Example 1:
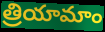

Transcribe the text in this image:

త్రియామాం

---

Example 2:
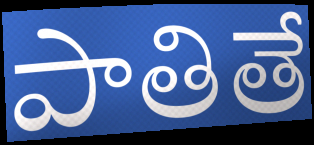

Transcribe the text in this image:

పాతితే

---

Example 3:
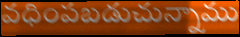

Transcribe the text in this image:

వధింపబడుచున్నాము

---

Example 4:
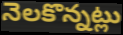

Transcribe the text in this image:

నెలకొన్నట్లు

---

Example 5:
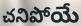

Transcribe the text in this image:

చనిపోయే